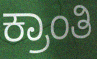
ಕ್ರಾಂತಿ